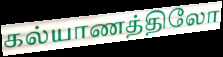
கல்யாணத்திலோ